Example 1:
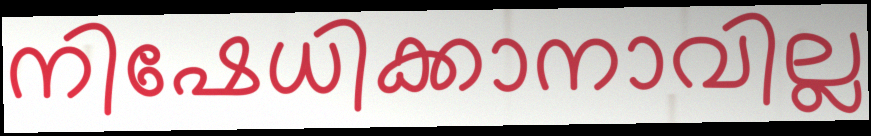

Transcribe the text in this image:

നിഷേധിക്കാനാവില്ല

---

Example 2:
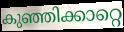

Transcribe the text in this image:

കുഞ്ഞിക്കാറ്റെ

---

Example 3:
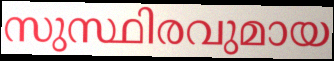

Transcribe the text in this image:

സുസ്ഥിരവുമായ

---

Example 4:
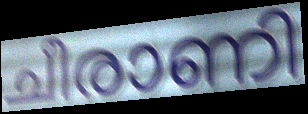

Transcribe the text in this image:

ചീരാണി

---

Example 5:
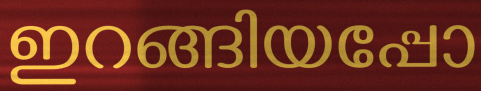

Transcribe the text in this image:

ഇറങ്ങിയപ്പോ